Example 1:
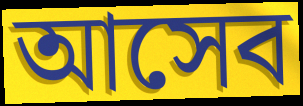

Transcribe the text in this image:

আসেব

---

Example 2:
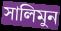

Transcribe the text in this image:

সালিমুন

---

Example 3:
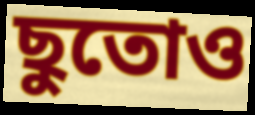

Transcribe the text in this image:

ছুতোও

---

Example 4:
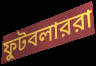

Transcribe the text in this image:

ফুটবলাররা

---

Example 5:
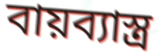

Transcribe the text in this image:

বায়ব্যাস্ত্র